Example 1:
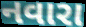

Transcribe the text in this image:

નવારા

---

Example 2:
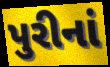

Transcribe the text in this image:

પુરીનાં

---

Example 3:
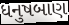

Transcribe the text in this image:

ધનુષબાણ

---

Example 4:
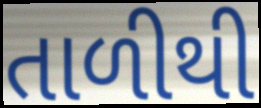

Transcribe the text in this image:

તાળીથી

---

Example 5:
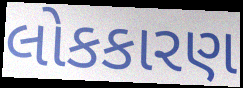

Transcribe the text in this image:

લોકકારણ